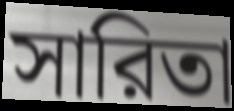
সারিতা